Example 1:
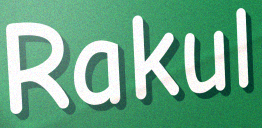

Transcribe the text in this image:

Rakul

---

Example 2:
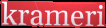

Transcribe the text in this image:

krameri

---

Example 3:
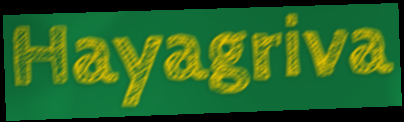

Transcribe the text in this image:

Hayagriva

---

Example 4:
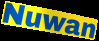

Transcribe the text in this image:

Nuwan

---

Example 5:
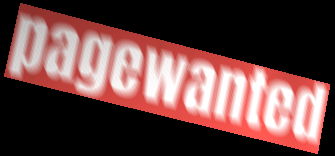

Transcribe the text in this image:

pagewanted